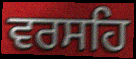
ਵਰਸਹਿ